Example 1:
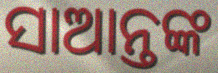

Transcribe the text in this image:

ସାଆନ୍ତଙ୍କ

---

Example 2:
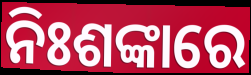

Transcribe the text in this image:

ନିଃଶଙ୍କାରେ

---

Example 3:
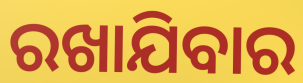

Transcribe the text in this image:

ରଖାଯିବାର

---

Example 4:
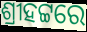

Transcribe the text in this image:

ଶ୍ରୀହଟ୍ଟରେ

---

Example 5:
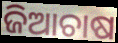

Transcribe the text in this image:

ଜିଆଚାଷ